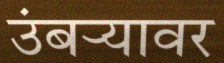
उंबर्‍यावर